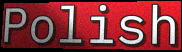
Polish